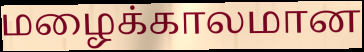
மழைக்காலமான